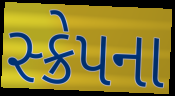
સ્ક્રેપના